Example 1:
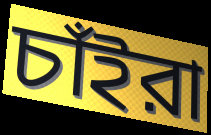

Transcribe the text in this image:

চাঁইরা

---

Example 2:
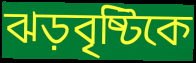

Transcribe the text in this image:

ঝড়বৃষ্টিকে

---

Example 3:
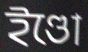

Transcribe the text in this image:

ইণ্ডো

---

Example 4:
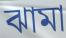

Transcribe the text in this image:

ঝামা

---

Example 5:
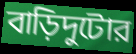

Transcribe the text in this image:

বাড়িদুটোর